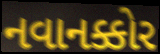
નવાનક્કોર